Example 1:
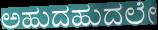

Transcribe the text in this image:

ಅಹುದಹುದಲೇ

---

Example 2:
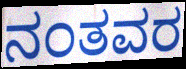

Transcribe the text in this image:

ನಂತವರ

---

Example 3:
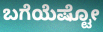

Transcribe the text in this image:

ಬಗೆಯೆಷ್ಟೋ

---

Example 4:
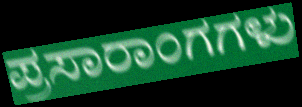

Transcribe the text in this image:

ಪ್ರಸಾರಾಂಗಗಳು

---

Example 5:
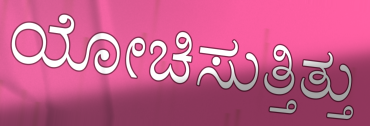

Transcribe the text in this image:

ಯೋಚಿಸುತ್ತಿತ್ತು